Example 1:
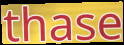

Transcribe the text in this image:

thase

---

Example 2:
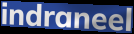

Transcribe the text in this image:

indraneel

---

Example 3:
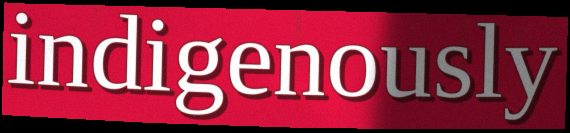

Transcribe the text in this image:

indigenously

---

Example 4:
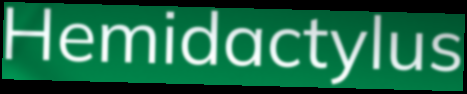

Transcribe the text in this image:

Hemidactylus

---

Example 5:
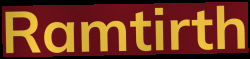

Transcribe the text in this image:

Ramtirth